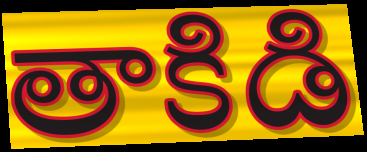
తాకిడి